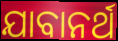
ଯାବାନର୍ଥ